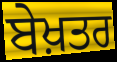
ਬੇਖ਼ਤਰ